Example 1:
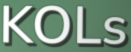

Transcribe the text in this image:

KOLs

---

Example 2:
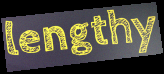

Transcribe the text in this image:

lengthy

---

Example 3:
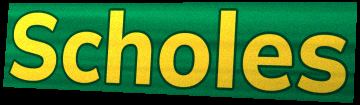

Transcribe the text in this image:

Scholes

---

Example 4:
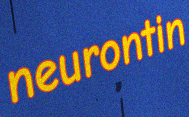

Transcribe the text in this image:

neurontin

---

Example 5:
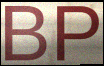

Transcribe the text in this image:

BP